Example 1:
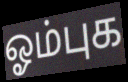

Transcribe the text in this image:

ஓம்புக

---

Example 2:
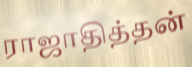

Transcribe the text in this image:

ராஜாதித்தன்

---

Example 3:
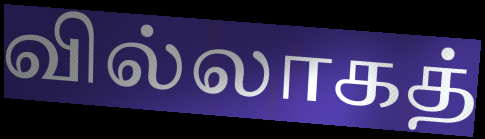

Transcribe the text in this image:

வில்லாகத்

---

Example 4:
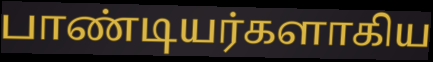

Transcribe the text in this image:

பாண்டியர்களாகிய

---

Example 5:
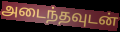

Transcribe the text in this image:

அடைந்தவுடன்